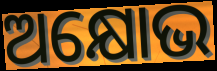
ଅକ୍ଷୋଭ